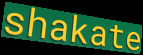
shakate